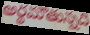
అర్థమౌతున్నది